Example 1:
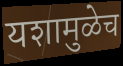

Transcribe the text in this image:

यशामुळेच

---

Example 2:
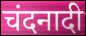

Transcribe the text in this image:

चंदनादी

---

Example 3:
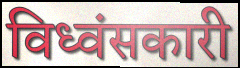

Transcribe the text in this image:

विध्वंसकारी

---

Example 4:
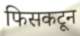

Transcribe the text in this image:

फिसकटून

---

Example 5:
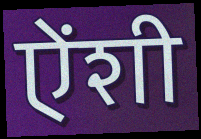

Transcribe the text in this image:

ऐंशी